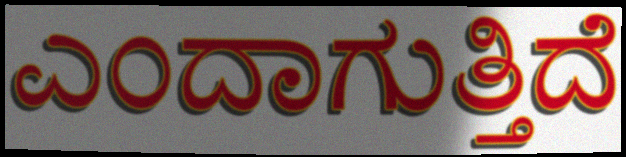
ಎಂದಾಗುತ್ತಿದೆ